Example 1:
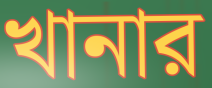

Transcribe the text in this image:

খানার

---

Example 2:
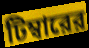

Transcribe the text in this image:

টিম্বারের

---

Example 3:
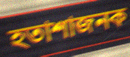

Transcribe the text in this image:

হতাশাজনক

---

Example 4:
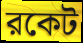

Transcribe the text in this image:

রকেট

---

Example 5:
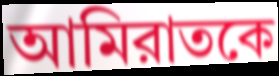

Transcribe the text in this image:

আমিরাতকে